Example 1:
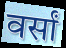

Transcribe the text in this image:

वर्सां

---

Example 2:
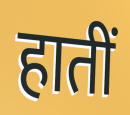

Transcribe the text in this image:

हातीं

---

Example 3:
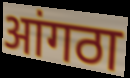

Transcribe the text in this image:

आंगठा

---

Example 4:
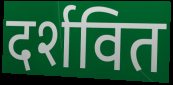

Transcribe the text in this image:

दर्शवित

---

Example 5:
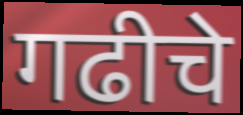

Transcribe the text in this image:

गढीचे